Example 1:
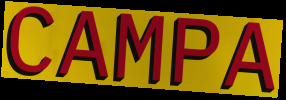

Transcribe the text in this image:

CAMPA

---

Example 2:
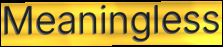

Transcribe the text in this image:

Meaningless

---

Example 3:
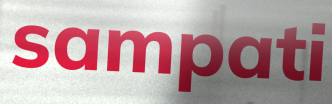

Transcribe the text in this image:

sampati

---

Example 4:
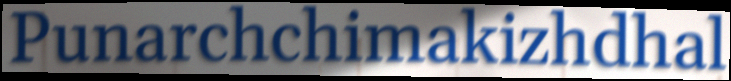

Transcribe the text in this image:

Punarchchimakizhdhal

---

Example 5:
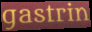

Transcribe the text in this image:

gastrin